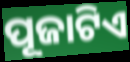
ପୂଜାଟିଏ